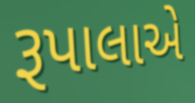
રૂપાલાએ